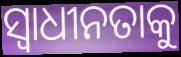
ସ୍ବାଧୀନତାକୁ